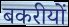
बकरीयों